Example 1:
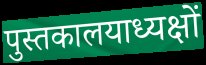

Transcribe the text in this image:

पुस्तकालयाध्यक्षों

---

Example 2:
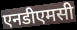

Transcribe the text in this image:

एनडीएमसी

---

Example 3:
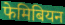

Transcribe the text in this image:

फेमिबियन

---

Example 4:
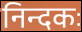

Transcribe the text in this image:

निन्दकः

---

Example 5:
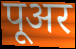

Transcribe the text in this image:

पूअर